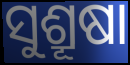
ସୁଶ୍ରୂଷା